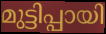
മുട്ടിപ്പായി